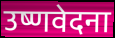
उष्णवेदना